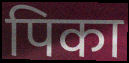
पिका